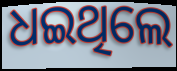
ଧଇଥିଲେ